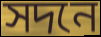
সদনে